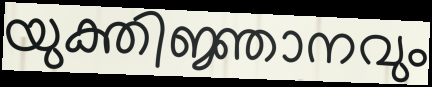
യുക്തിജ്ഞാനവും